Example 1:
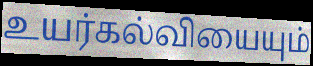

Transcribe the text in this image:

உயர்கல்வியையும்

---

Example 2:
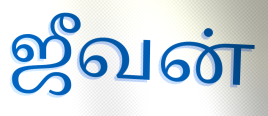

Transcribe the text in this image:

ஜீவன்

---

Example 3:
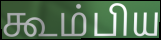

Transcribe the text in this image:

கூம்பிய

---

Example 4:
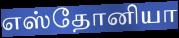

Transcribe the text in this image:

எஸ்தோனியா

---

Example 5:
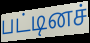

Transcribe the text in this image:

பட்டினச்